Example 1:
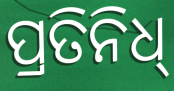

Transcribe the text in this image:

ପ୍ରତିନିଧ୍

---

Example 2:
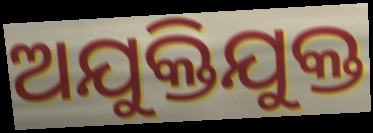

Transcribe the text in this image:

ଅଯୁକ୍ତିଯୁକ୍ତ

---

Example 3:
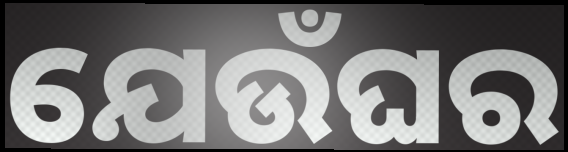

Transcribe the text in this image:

ଯେଉଁଘର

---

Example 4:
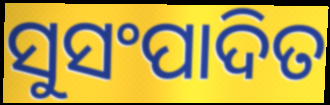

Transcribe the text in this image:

ସୁସଂପାଦିତ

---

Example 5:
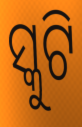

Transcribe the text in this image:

ସ୍କୁଟି